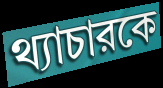
থ্যাচারকে